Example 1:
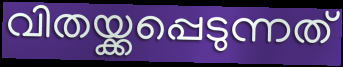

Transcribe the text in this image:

വിതയ്ക്കപ്പെടുന്നത്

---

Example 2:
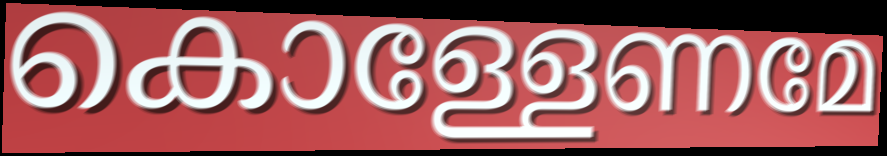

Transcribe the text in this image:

കൊള്ളേണമേ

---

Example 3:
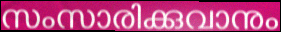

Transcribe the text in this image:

സംസാരിക്കുവാനും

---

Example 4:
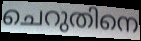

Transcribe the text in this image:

ചെറുതിനെ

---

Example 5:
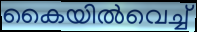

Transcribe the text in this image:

കൈയിൽവെച്ച്